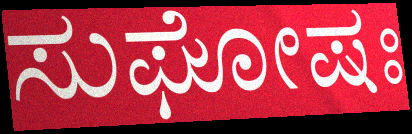
ಸುಘೋಷಃ